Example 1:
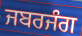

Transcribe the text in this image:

ਜਬਰਜੰਗ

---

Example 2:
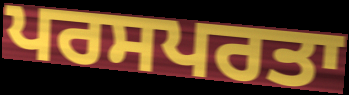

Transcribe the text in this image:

ਪਰਸਪਰਤਾ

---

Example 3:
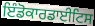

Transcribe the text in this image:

ਇੰਡੋਕਾਰਡਾਈਟਿਸ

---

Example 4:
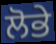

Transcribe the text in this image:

ਲੋਭੇ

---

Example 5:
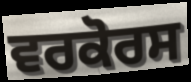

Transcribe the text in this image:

ਵਰਕੋਰਸ